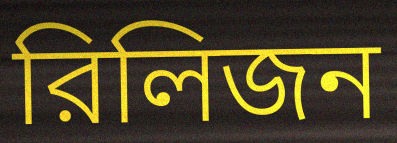
রিলিজন